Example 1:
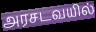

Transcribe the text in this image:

அரசடவயில்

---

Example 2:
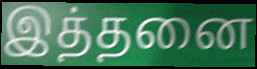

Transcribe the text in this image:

இத்தனை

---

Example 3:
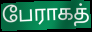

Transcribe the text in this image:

பேராகத்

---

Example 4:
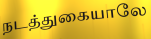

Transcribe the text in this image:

நடத்துகையாலே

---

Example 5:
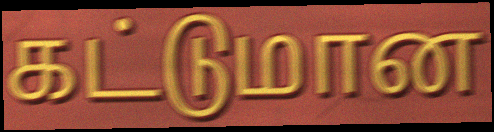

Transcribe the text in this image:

கட்டுமான